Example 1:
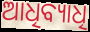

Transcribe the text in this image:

ଆଧିବ୍ୟାଧି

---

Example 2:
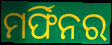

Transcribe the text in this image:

ମର୍ଫିନର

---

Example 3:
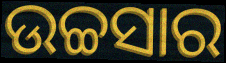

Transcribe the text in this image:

ଉଚ୍ଚସାର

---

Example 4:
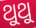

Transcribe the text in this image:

ଥୁଥୁ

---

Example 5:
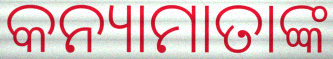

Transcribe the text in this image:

କନ୍ୟାମାତାଙ୍କ